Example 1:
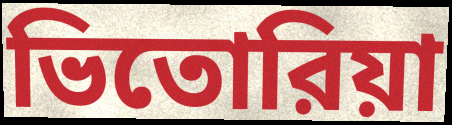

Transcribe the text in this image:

ভিতোরিয়া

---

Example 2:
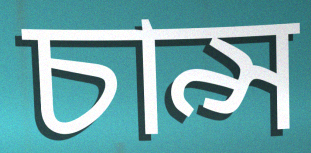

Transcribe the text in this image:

চান্স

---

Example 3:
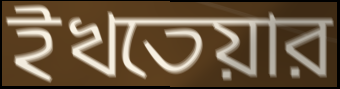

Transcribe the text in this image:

ইখতেয়ার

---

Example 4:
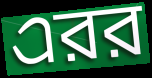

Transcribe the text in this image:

এরর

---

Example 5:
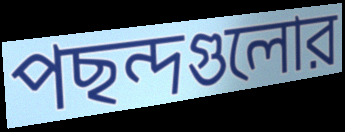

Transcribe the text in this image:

পছন্দগুলোর